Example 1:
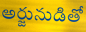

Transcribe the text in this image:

అర్జునుడితో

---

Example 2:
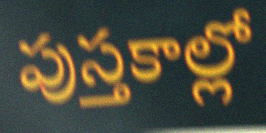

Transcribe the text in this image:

పుస్తకాల్లో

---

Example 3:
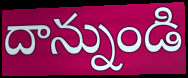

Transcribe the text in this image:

దాన్నుండి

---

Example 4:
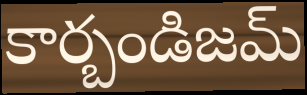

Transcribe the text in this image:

కార్బండిజమ్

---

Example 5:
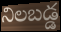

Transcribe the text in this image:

నిలబడ్డ